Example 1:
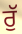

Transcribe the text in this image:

ਰੁੱ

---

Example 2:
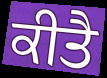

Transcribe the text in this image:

ਕੀਤੈ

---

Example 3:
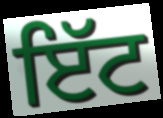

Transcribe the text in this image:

ਇੱਟ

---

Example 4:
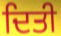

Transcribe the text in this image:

ਦਿਤੀ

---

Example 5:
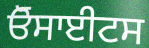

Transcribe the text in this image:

ਓੋਸਾਈਟਸ